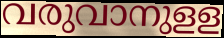
വരുവാനുളള